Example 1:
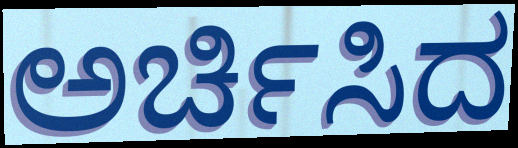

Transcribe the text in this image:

ಅರ್ಚಿಸಿದ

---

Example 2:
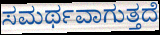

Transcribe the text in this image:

ಸಮರ್ಥವಾಗುತ್ತದೆ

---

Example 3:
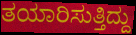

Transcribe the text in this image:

ತಯಾರಿಸುತ್ತಿದ್ದು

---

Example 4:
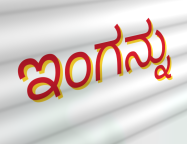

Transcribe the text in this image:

ಇಂಗನ್ನು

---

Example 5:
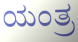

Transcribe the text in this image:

ಯಂತ್ರ